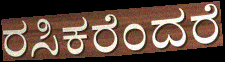
ರಸಿಕರೆಂದರೆ